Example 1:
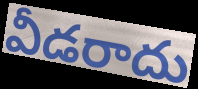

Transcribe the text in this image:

వీడరాదు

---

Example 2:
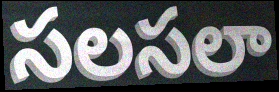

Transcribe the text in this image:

సలసలా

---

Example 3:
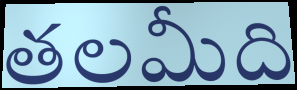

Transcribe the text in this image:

తలమీది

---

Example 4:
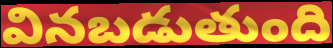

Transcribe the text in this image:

వినబడుతుంది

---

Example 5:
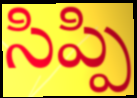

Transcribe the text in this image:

సిప్పి